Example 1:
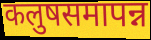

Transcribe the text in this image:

कलुषसमापन्न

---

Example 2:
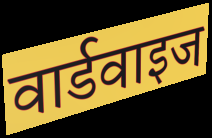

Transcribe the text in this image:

वार्डवाइज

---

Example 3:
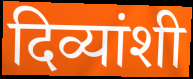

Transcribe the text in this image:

दिव्यांशी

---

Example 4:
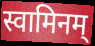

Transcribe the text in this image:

स्वामिनम्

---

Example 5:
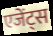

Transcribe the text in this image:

एजेंट्स